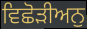
ਵਿਛੋੜੀਅਨੁ